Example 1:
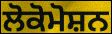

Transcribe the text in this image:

ਲੋਕੋਮੋਸ਼ਨ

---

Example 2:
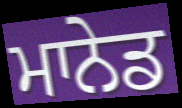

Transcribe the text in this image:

ਮਾਨੇਡ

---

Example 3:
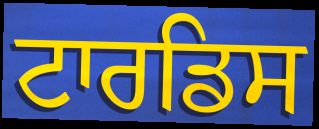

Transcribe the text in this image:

ਟਾਰਡਿਸ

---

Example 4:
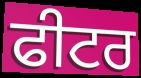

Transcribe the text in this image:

ਫੀਟਰ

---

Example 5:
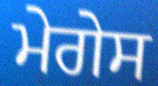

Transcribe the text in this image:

ਮੇਗੇਸ